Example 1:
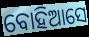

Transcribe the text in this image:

ବୋହିଆସେ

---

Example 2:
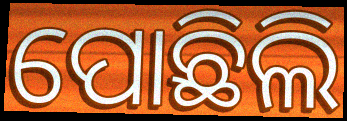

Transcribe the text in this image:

ପୋଛିଲି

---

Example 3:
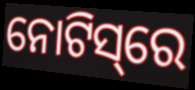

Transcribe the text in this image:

ନୋଟିସ୍‌ରେ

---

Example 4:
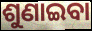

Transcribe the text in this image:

ଶୁଣାଇବା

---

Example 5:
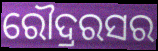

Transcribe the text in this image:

ରୌଦ୍ରରସର